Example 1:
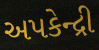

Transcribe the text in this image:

અપકેન્દ્રી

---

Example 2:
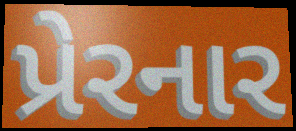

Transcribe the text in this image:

પ્રેરનાર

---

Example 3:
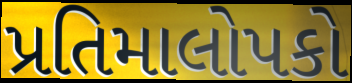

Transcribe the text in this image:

પ્રતિમાલોપકો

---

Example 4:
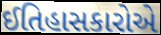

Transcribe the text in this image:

ઈતિહાસકારોએ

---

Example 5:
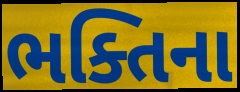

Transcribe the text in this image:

ભક્તિના